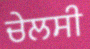
ਚੇਲਸੀ